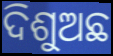
ଦିଶୁଅଛ